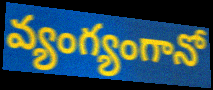
వ్యంగ్యంగానో